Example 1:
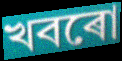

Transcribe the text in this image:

খবৰো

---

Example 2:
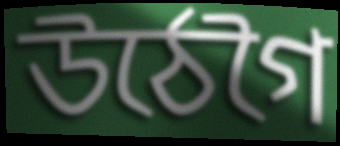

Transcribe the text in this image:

উঠেগৈ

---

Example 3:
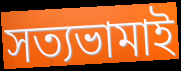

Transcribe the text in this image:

সত্যভামাই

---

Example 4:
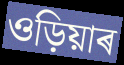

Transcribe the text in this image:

ওড়িয়াৰ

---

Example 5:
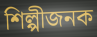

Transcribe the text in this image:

শিল্পীজনক